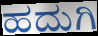
ಹದುಗಿ